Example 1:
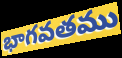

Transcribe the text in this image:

భాగవతము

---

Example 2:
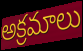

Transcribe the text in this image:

అక్రమాలు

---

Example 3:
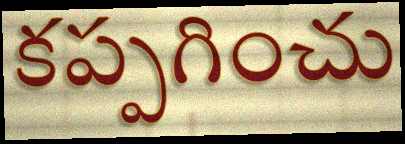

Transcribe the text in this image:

కప్పగించు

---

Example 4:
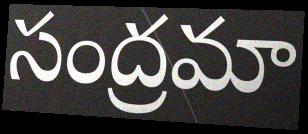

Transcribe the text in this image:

సంద్రమా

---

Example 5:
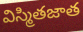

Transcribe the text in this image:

విస్మితజాత